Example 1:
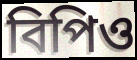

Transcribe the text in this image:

বিপিও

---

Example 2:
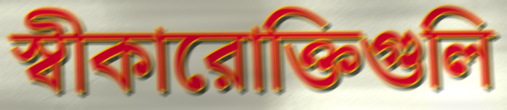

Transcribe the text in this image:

স্বীকারোক্তিগুলি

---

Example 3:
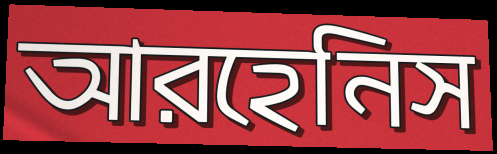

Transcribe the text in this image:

আরহেনিস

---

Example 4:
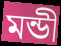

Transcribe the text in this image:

মন্ডী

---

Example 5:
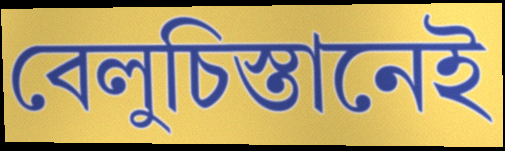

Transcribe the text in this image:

বেলুচিস্তানেই